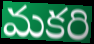
మకరి